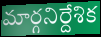
మార్గనిర్దేశిక